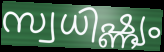
സ്വധിഷ്ണ്യം